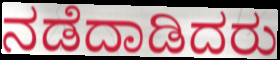
ನಡೆದಾಡಿದರು